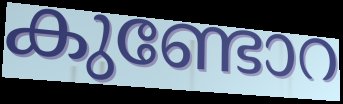
കുണ്ടോറ